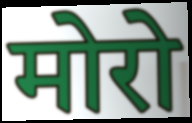
मोरो